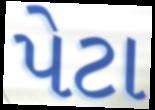
પેટા